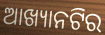
ଆଖ୍ୟାନଟିର